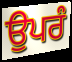
ਉਪਰੰ